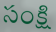
సంక్షి